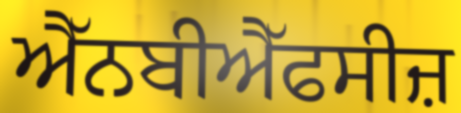
ਐੱਨਬੀਐੱਫਸੀਜ਼